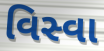
વિસ્વા